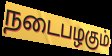
நடைபழகும்